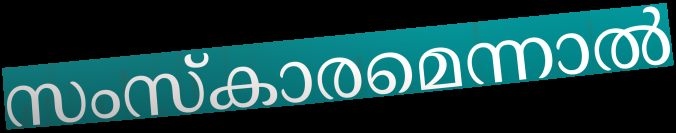
സംസ്കാരമെന്നാൽ